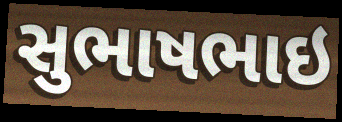
સુભાષભાઇ